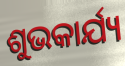
ଶୁଭକାର୍ଯ୍ୟ